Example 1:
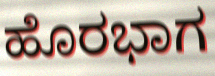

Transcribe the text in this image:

ಹೊರಭಾಗ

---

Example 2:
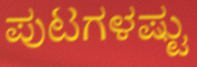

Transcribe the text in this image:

ಪುಟಗಳಷ್ಟು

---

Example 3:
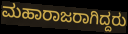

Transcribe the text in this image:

ಮಹಾರಾಜರಾಗಿದ್ದರು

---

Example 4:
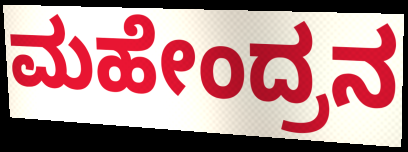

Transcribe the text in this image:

ಮಹೇಂದ್ರನ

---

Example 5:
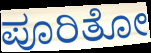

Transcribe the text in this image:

ಪೂರಿತೋ